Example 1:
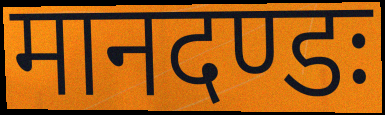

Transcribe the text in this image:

मानदण्डः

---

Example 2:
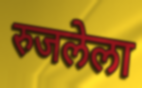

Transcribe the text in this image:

रुजलेला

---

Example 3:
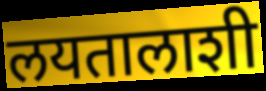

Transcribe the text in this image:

लयतालाशी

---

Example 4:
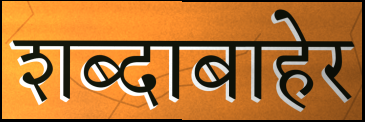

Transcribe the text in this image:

शब्दाबाहेर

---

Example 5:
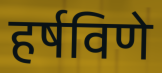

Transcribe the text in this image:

हर्षविणे